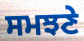
ਸਮਝਣੇ